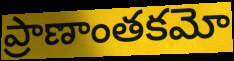
ప్రాణాంతకమో